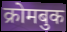
क्रोमबुक